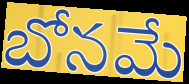
బోనమే